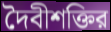
দৈবীশক্তির